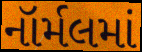
નૉર્મલમાં